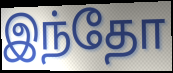
இந்தோ